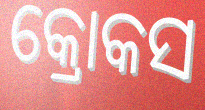
କ୍ରୋକସ